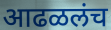
आढळलंच